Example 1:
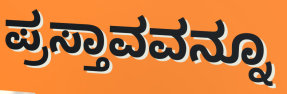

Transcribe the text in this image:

ಪ್ರಸ್ತಾವವನ್ನೂ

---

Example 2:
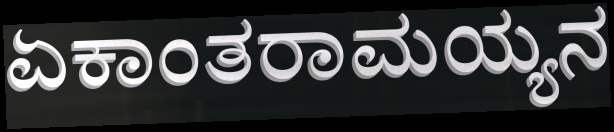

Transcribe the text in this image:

ಏಕಾಂತರಾಮಯ್ಯನ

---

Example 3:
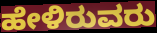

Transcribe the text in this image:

ಹೇಳಿರುವರು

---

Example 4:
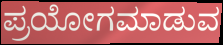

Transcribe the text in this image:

ಪ್ರಯೋಗಮಾಡುವ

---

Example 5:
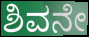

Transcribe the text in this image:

ಶಿವನೇ